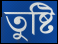
তুষ্টি